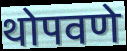
थोपवणे